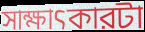
সাক্ষাৎকারটা